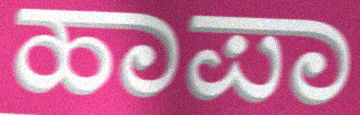
ಹಾಪಾ